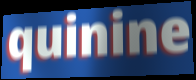
quinine